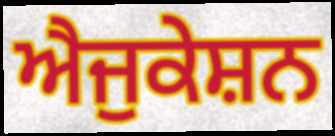
ਐਜੁਕੇਸ਼ਨ